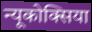
न्यूकोक्सिया